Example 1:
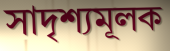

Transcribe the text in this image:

সাদৃশ্যমূলক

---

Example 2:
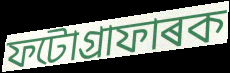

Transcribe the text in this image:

ফটোগ্ৰাফাৰক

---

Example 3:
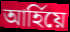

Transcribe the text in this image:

আৰ্হিয়ে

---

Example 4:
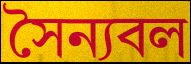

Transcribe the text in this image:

সৈন্যবল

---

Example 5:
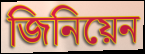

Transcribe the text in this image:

জিনিয়েন